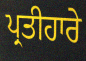
ਪ੍ਰਤੀਹਾਰੇ